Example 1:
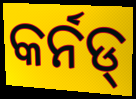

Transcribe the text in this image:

କର୍ନଡ୍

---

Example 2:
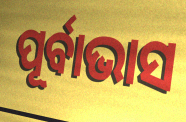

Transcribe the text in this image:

ପୂର୍ବାଭାସ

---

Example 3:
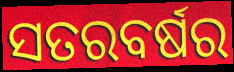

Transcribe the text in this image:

ସତରବର୍ଷର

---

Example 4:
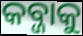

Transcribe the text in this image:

କବ୍ଜାକୁ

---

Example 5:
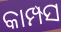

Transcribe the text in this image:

କାମ୍ପସ